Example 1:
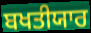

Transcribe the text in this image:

ਬਖਤੀਯਾਰ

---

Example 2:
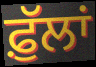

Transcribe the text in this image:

ਫ਼ੁੱਲਾਂ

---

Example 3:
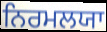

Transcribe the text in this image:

ਨਿਰਮਲਯਾ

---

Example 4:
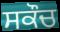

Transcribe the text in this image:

ਸਕੌਚ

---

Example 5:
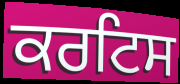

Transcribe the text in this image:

ਕਰਟਿਸ